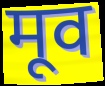
मूव